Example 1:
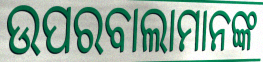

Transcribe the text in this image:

ଉପରବାଲାମାନଙ୍କ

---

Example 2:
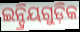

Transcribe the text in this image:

ଇନ୍ଦ୍ରିୟଗୁଡ଼ିକ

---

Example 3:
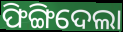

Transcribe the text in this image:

ଫିଙ୍ଗିଦେଲା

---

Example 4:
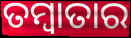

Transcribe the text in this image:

ତମ୍ବାତାର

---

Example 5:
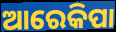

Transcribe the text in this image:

ଆରେକିପା